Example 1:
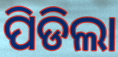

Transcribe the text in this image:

ପିଡିଲା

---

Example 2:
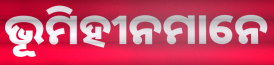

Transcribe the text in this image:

ଭୂମିହୀନମାନେ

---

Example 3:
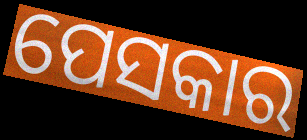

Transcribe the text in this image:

ପେସକାର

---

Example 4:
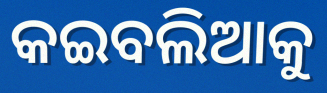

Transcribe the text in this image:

କଇବଲିଆକୁ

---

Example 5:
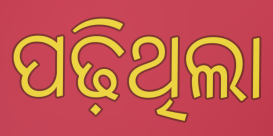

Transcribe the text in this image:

ପଢ଼ିଥିଲା